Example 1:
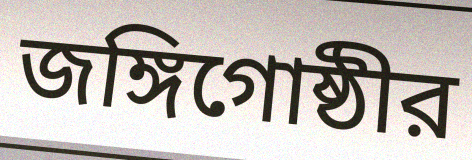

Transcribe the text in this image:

জঙ্গিগোষ্ঠীর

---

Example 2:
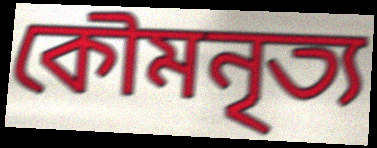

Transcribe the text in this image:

কৌমনৃত্য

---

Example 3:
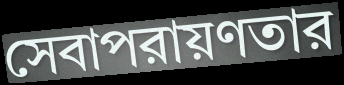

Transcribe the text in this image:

সেবাপরায়ণতার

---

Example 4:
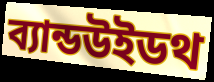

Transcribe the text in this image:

ব্যান্ডউইডথ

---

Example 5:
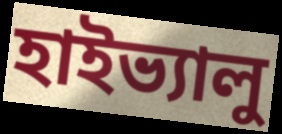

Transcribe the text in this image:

হাইভ্যালু